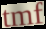
tmf